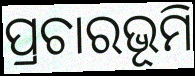
ପ୍ରଚାରଭୂମି